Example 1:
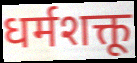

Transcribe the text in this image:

धर्मशक्तू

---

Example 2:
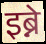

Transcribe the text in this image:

इब्ने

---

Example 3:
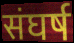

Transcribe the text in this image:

संघर्ष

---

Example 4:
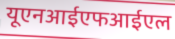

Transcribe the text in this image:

यूएनआईएफआईएल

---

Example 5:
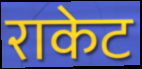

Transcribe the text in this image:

राकेट